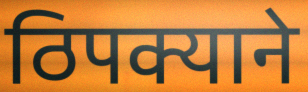
ठिपक्याने